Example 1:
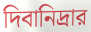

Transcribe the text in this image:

দিবানিদ্রার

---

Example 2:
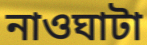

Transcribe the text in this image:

নাওঘাটা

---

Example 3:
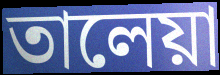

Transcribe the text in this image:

তালেয়া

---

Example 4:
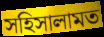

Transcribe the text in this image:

সহিসালামত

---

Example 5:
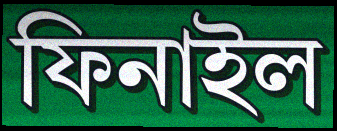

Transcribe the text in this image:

ফিনাইল